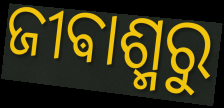
ଜୀଵାଶ୍ମରୁ